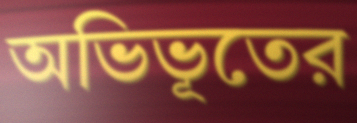
অভিভূতের